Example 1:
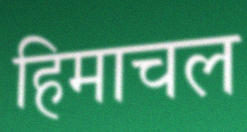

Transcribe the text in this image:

हिमाचल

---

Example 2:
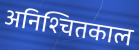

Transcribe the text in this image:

अनिश्चितकाल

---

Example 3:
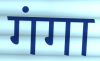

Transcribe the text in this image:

गंगा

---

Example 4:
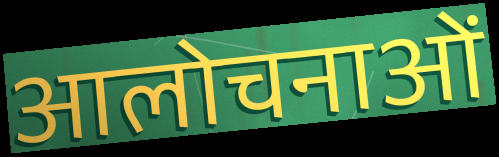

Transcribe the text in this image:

आलोचनाओं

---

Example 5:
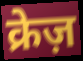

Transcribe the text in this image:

क्रेज़